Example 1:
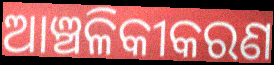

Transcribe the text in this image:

ଆଞ୍ଚଳିକୀକରଣ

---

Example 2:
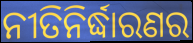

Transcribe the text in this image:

ନୀତିନିର୍ଦ୍ଧାରଣର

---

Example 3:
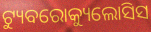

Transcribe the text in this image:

ଟ୍ୟୁବରୋକ୍ୟୁଲୋସିସ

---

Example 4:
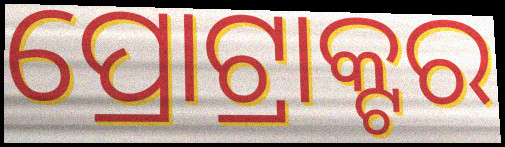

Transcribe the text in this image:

ପ୍ରୋଟ୍ରାକ୍ଟର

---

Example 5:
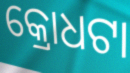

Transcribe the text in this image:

କ୍ରୋଧଟା